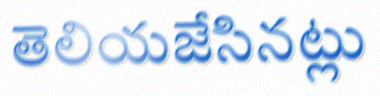
తెలియజేసినట్లు